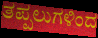
ತಪ್ಪಲುಗಳಿಂದ